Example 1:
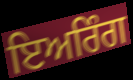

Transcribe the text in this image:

ਇਅਰਿੰਗ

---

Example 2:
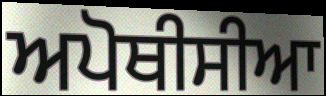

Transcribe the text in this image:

ਅਪੋਥੀਸੀਆ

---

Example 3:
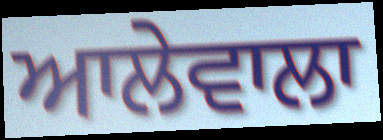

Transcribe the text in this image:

ਆਲੇਵਾਲਾ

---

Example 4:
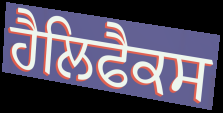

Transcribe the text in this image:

ਹੈਲਿਫੈਕਸ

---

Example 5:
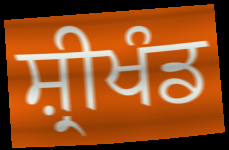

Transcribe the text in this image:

ਸ਼੍ਰੀਖੰਡ